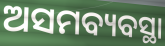
ଅସମବ୍ୟବସ୍ଥା